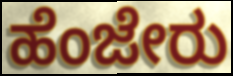
ಹೆಂಜೇರು